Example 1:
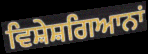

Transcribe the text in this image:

ਵਿਸ਼ੇਸ਼ਗਿਆਨਾਂ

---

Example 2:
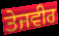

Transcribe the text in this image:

ਤੇਜਵੀਰ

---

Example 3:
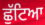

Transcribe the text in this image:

ਛੁੱਟਿਆ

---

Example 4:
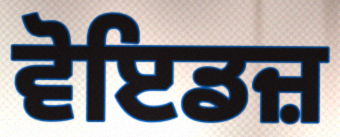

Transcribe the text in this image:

ਵੋਇਡਜ਼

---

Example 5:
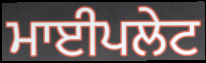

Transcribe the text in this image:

ਮਾਈਪਲੇਟ